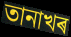
তানাখৰ